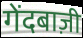
गेंदबाज़ी